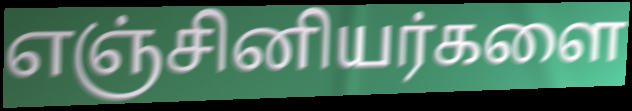
எஞ்சினியர்களை